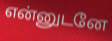
என்னுடனே